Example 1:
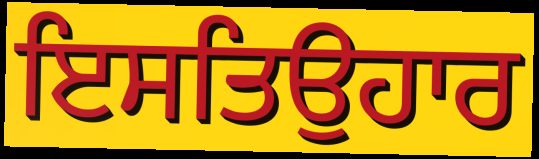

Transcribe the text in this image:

ਇਸਤਿਉਹਾਰ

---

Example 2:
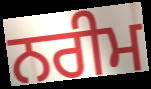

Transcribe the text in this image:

ਨਰੀਮ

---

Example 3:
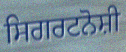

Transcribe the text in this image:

ਸਿਗਰਟਨੋਸ਼ੀ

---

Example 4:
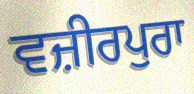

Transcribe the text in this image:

ਵਜ਼ੀਰਪੁਰਾ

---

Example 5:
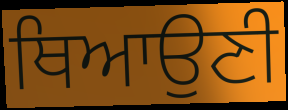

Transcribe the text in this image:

ਥਿਆਉਣੀ